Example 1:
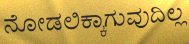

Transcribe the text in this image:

ನೋಡಲಿಕ್ಕಾಗುವುದಿಲ್ಲ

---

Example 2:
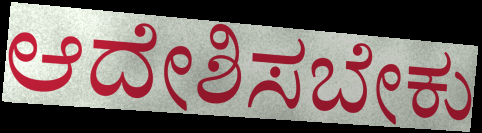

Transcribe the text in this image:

ಆದೇಶಿಸಬೇಕು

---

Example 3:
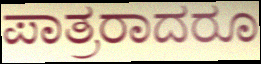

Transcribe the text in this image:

ಪಾತ್ರರಾದರೂ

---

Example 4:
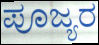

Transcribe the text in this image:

ಪೂಜ್ಯರ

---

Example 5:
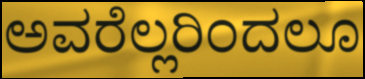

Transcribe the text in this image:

ಅವರೆಲ್ಲರಿಂದಲೂ